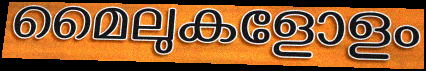
മൈലുകളോളം